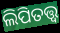
ଲିପିତତ୍ତ୍ୱ